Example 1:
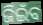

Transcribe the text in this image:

ଜିଇଁବ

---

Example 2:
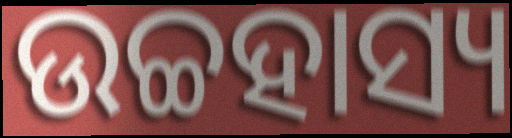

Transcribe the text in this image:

ଉଚ୍ଚହାସ୍ୟ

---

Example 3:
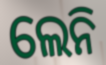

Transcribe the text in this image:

ଲେନି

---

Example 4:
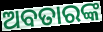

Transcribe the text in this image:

ଅବତାରଙ୍କ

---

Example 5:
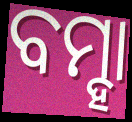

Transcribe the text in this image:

ବମ୍ହା